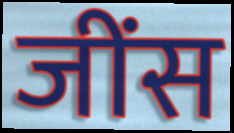
जींस